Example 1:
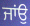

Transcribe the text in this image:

ਜਾਂਉ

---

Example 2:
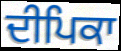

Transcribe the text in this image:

ਦੀਪਿਕਾ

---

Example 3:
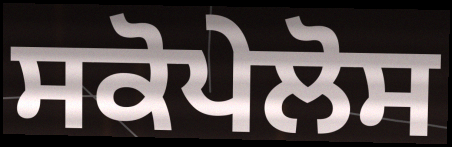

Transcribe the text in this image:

ਸਕੋਪੇਲੋਸ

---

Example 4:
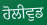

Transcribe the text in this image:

ਹੋਲੀਵੁਡ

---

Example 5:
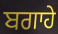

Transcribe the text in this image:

ਬਗਾਹੇ